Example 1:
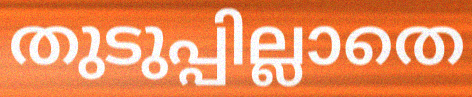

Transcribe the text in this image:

തുടുപ്പില്ലാതെ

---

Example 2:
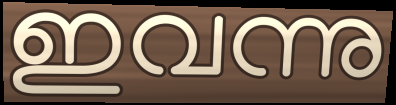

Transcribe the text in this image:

ഇവന്നു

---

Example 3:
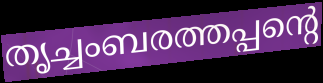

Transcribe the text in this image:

തൃച്ചംബരത്തപ്പന്റെ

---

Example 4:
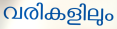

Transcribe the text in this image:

വരികളിലും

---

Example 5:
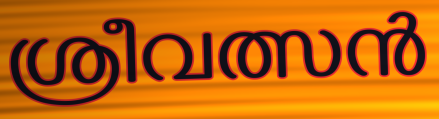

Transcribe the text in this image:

ശ്രീവത്സൻ